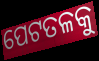
ପେଟତଳକୁ